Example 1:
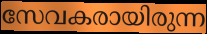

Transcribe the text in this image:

സേവകരായിരുന്ന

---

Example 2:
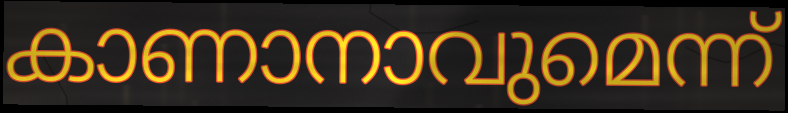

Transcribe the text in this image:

കാണാനാവുമെന്ന്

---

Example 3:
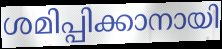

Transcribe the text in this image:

ശമിപ്പിക്കാനായി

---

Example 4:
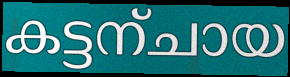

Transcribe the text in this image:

കട്ടന്ചായ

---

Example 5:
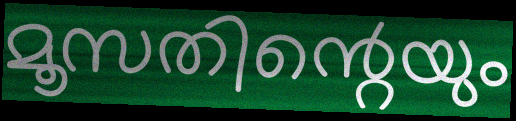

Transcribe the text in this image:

മൂസതിന്റെയും